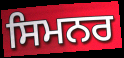
ਸਿਮਨਰ